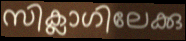
സിക്ലാഗിലേക്കു